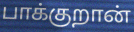
பாக்குறான்